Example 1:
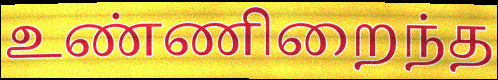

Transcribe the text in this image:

உண்ணிறைந்த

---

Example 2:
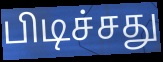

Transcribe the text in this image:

பிடிச்சது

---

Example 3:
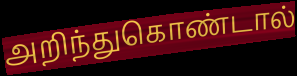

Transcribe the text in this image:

அறிந்துகொண்டால்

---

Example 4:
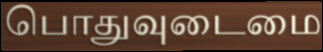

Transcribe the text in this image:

பொதுவுடைமை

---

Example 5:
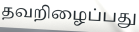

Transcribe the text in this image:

தவறிழைப்பது